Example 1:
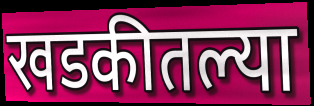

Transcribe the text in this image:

खडकीतल्या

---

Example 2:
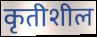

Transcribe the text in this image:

कृतीशील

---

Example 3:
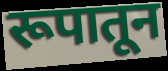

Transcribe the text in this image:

रूपातून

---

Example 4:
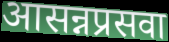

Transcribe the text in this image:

आसन्नप्रसवा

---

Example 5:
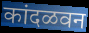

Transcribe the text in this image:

कांदळवन